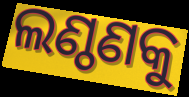
ଲଣ୍ଠଣକୁ